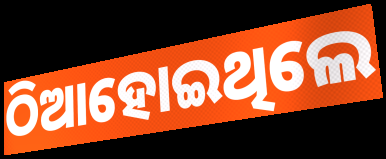
ଠିଆହୋଇଥିଲେ